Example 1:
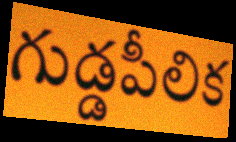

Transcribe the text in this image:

గుడ్డపీలిక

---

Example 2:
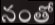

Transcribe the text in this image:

నంతో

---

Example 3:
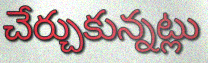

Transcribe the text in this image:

చేర్చుకున్నట్లు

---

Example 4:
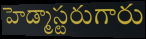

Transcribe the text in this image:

హెడ్మాస్టరుగారు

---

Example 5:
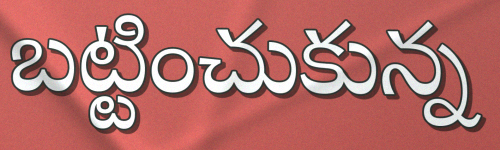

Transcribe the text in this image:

బట్టించుకున్న